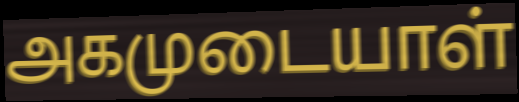
அகமுடையாள்